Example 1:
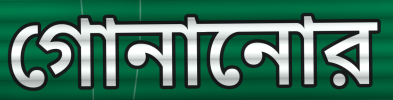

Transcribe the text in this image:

গোনানোর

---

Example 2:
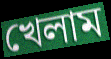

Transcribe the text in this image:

খেলাম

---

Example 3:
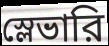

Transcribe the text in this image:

স্লেভারি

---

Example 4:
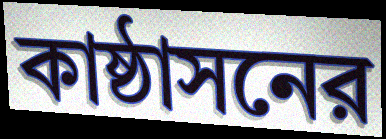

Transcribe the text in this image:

কাষ্ঠাসনের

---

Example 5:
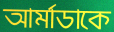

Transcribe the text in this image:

আর্মাডাকে